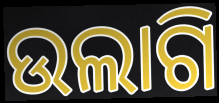
ଉଲାଗି